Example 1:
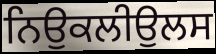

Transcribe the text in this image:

ਨਿਉਕਲੀਉਲਸ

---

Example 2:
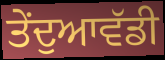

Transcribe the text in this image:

ਤੇਂਦੁਆਵੱਡੀ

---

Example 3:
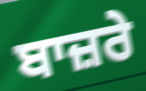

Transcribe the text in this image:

ਬਾਜ਼ਰੇ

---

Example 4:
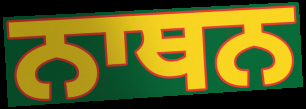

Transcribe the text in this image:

ਨਾਥਨ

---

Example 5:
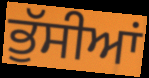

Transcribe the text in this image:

ਭੁੱਸੀਆਂ